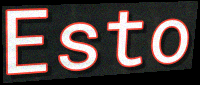
Esto